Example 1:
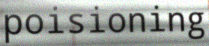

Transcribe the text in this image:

poisioning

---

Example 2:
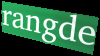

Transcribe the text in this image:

rangde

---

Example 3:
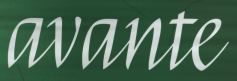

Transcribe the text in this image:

avante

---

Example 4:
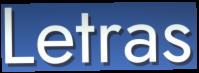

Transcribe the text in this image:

Letras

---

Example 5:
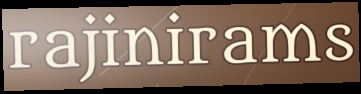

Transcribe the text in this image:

rajinirams